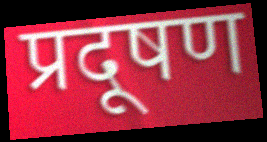
प्रदूषण